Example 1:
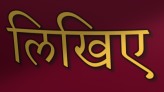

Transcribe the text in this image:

लिखिए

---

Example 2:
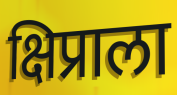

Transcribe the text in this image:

क्षिप्राला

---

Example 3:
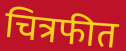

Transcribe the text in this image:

चित्रफीत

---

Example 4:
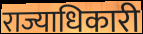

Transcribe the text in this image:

राज्याधिकारी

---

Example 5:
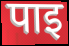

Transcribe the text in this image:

पाइ